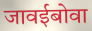
जावईबोवा